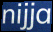
nijja